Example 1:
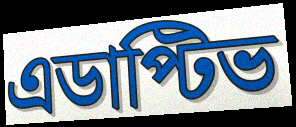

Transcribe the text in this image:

এডাপ্টিভ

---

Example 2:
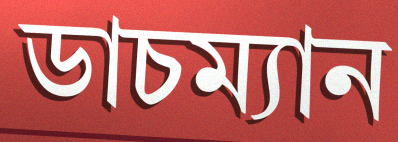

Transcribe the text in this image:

ডাচম্যান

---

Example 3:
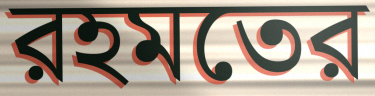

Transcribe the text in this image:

রহমতের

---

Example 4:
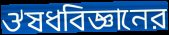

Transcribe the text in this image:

ঔষধবিজ্ঞানের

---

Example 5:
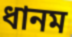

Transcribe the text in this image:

ধানম